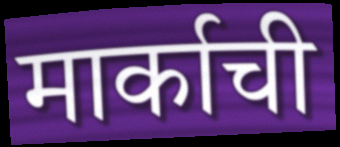
मार्काची